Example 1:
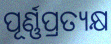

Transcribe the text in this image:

ପୂର୍ଣ୍ଣପ୍ରତ୍ୟକ୍ଷ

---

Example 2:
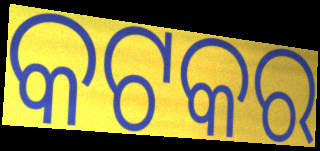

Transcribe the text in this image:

କଟକର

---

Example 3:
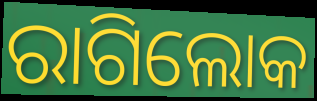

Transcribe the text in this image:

ରାଗିଲୋକ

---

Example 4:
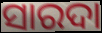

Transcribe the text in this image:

ସାରଦା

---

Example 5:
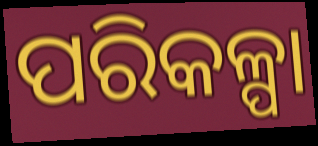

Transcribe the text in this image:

ପରିକଳ୍ପା